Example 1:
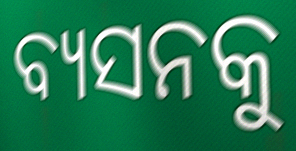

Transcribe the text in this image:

ବ୍ୟସନକୁ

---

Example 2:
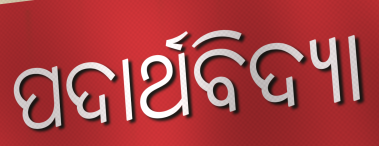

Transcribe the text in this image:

ପଦାର୍ଥବିଦ୍ୟା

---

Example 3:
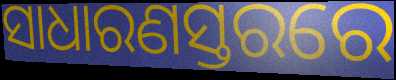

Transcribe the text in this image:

ସାଧାରଣସ୍ତରରେ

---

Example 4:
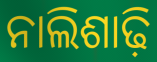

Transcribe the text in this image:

ନାଲିଶାଢ଼ି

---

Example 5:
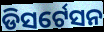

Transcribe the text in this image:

ଡିସର୍ଟେସନ